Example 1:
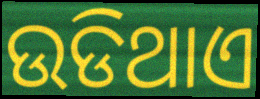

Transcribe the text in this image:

ଉଡିଥାଏ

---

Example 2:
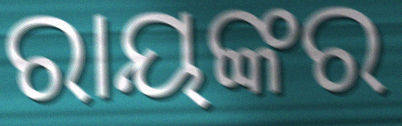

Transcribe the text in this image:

ରାୟଙ୍କର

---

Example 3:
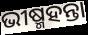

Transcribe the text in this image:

ଭୀଷ୍ମହନ୍ତା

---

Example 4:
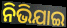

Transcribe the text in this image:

ନିଭିଯାଇ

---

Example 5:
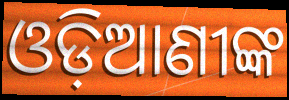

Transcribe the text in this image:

ଓଡ଼ିଆଣୀଙ୍କ